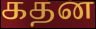
கதன